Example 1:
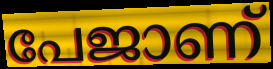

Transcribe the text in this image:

പേജാണ്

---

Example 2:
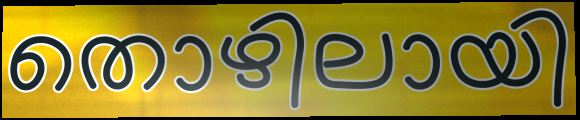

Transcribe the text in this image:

തൊഴിലായി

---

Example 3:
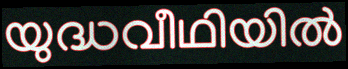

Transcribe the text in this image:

യുദ്ധവീഥിയിൽ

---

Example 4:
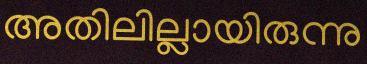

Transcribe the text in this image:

അതിലില്ലായിരുന്നു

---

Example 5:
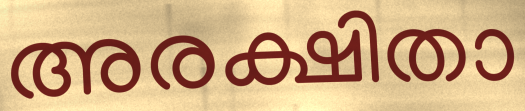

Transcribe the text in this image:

അരക്ഷിതാ